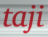
taji